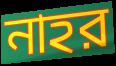
নাহর